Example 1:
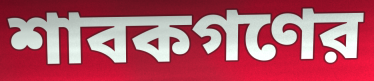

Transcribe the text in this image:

শাবকগণের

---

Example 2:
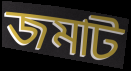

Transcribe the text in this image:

জমাট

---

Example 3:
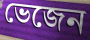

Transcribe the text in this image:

ভেজেন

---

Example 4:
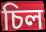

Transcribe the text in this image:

চিল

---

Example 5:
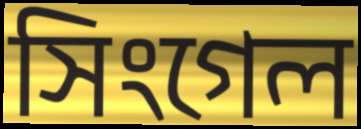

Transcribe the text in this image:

সিংগেল